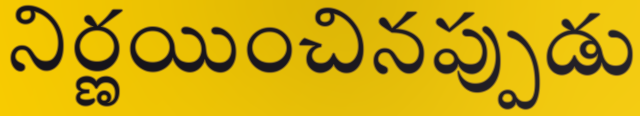
నిర్ణయించినప్పుడు